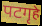
पटगृहे